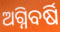
ଅଗ୍ନିବର୍ଷି